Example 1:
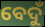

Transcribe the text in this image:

ବେଦୁଁ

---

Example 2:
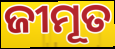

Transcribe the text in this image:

ଜୀମୂତ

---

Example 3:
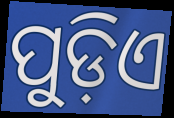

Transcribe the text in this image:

ପୁଡ଼ିଏ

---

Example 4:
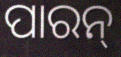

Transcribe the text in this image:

ପାରନ୍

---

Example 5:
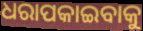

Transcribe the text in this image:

ଧରାପକାଇବାକୁ